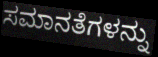
ಸಮಾನತೆಗಳನ್ನು